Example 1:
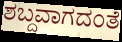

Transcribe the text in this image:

ಶಬ್ದವಾಗದಂತೆ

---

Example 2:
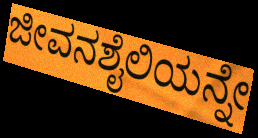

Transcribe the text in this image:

ಜೀವನಶೈಲಿಯನ್ನೇ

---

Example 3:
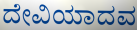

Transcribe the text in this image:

ದೇವಿಯಾದವ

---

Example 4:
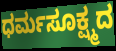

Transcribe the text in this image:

ಧರ್ಮಸೂಕ್ಷ್ಮದ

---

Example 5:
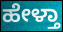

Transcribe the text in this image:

ಹೇಳ್ತಾ